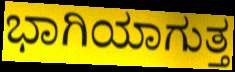
ಭಾಗಿಯಾಗುತ್ತ